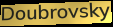
Doubrovsky